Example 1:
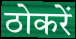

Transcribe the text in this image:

ठोकरें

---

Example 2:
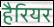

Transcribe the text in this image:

हैरियर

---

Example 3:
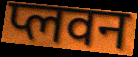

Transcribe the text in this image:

प्लवन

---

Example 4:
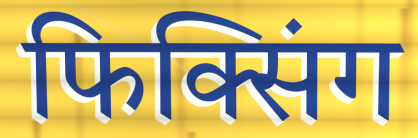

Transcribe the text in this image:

फिक्सिंग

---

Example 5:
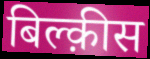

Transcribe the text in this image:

बिल्क़ीस